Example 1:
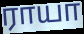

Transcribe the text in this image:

ராயா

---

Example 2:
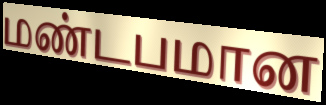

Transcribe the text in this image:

மண்டபமான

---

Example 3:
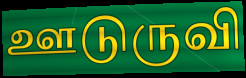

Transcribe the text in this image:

ஊடுருவி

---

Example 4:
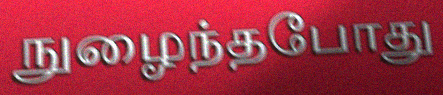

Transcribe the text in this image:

நுழைந்தபோது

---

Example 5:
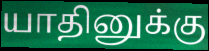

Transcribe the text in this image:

யாதினுக்கு